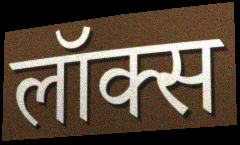
लॉक्स